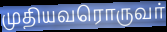
முதியவரொருவர்